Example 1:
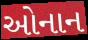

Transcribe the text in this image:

ઓનાન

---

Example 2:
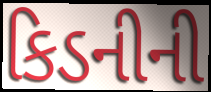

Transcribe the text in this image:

કિડનીની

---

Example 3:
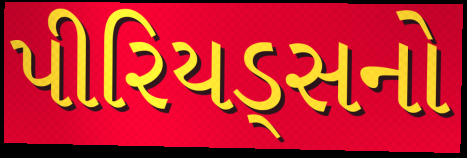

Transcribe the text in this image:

પીરિયડ્સનો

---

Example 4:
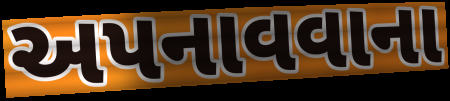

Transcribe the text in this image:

અપનાવવાના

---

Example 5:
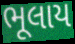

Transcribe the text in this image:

ભૂલાય